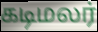
கடிமலர்